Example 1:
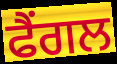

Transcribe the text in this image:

ਫੈਂਗਲ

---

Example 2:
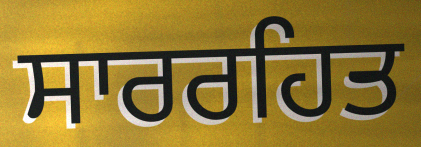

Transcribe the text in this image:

ਸਾਰਰਹਿਤ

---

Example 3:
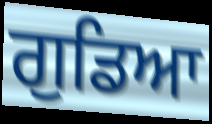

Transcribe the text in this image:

ਗੁਡਿਆ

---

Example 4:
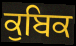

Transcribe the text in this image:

ਕੁਬਿਕ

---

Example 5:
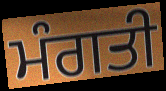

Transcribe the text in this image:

ਮੰਗਤੀ